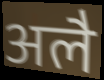
अलै